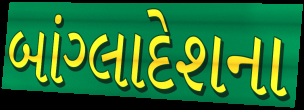
બાંગ્લાદેશના